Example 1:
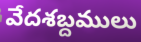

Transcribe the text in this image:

వేదశబ్దములు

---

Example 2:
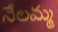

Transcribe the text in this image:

నేలమ్మ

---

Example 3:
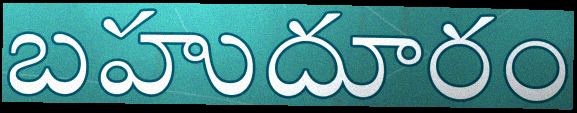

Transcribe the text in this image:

బహుదూరం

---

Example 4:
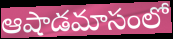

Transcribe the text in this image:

ఆషాడమాసంలో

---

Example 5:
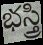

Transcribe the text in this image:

భస్త్రి